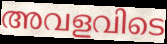
അവളവിടെ